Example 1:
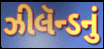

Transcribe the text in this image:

ઝીલૅન્ડનું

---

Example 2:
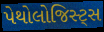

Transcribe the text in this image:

પેથોલોજિસ્ટ્સ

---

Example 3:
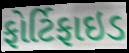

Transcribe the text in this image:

ફોર્ટિફાઇડ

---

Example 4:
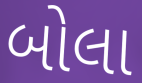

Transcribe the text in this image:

બોલા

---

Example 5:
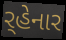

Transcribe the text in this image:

ર્‌હેનાર